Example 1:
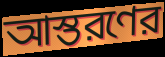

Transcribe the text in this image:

আস্তরণের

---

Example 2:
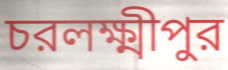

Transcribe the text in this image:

চরলক্ষ্মীপুর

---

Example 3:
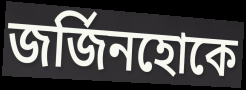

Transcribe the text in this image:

জর্জিনহোকে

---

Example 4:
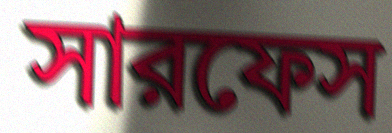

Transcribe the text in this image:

সারফেস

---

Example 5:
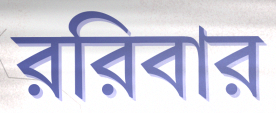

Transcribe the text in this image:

ররিবার